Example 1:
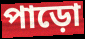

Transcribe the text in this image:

পাড়ো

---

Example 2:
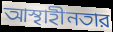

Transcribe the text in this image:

আস্থাহীনতার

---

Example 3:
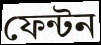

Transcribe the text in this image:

ফেন্টন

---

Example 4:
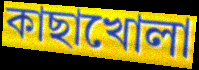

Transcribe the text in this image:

কাছাখোলা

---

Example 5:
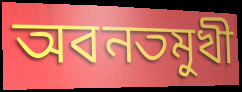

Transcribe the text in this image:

অবনতমুখী